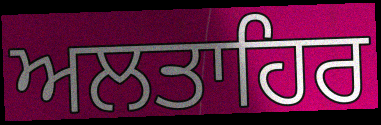
ਅਲਤਾਹਿਰ